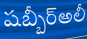
షబ్బీర్అలీ